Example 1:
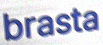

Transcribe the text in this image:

brasta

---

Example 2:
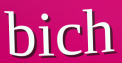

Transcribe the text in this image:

bich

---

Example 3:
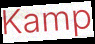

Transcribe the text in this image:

Kamp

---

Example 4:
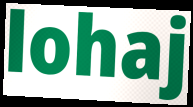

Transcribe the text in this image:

lohaj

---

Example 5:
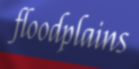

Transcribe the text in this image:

floodplains